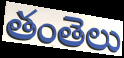
తంతెలు